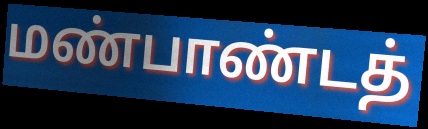
மண்பாண்டத்